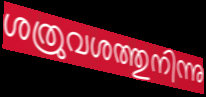
ശത്രുവശത്തുനിന്നു